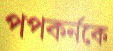
পপকর্নকে